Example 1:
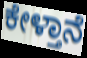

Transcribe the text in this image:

ಕೇಳ್ತಾನೆ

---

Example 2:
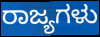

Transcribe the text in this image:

ರಾಜ್ಯಗಳು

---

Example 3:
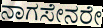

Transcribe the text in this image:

ನಾಗಸೇನರೇ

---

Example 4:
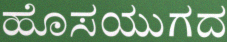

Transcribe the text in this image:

ಹೊಸಯುಗದ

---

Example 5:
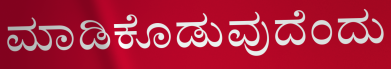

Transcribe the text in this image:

ಮಾಡಿಕೊಡುವುದೆಂದು